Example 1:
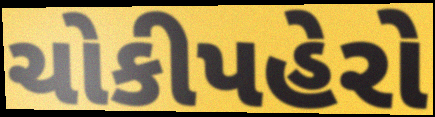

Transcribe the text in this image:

ચોકીપહેરો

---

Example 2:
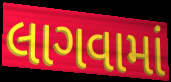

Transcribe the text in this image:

લાગવામાં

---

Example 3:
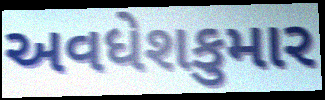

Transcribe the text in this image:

અવધેશકુમાર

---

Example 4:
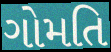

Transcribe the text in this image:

ગોમતિ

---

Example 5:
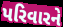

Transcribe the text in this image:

પરિવારને